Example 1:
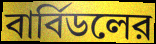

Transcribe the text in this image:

বার্বিডলের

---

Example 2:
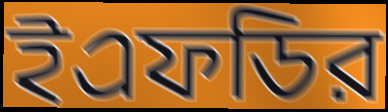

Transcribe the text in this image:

ইএফডির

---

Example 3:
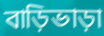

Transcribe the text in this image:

বাড়িভাড়া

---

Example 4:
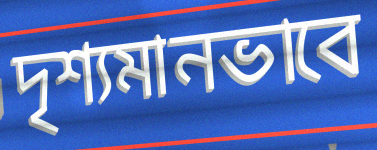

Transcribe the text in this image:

দৃশ্যমানভাবে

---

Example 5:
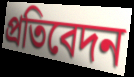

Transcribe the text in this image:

প্রতিবেদন